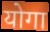
योगा